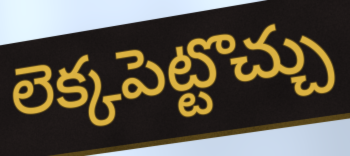
లెక్కపెట్టొచ్చు